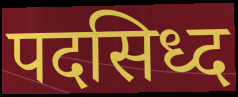
पदसिध्द